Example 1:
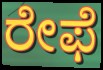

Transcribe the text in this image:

ರೇಫೆ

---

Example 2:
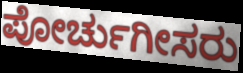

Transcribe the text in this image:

ಪೋರ್ಚುಗೀಸರು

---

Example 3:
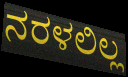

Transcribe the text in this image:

ನರಳಲಿಲ್ಲ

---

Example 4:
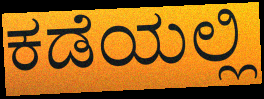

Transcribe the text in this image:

ಕಡೆಯಲ್ಲಿ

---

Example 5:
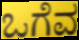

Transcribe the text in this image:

ಒಗೆವ